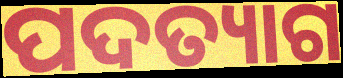
ପଦତ୍ୟାଗ